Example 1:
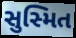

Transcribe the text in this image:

સુસ્મિત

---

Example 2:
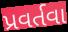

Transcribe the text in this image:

પ્રવર્તવા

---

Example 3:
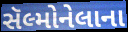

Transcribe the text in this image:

સૅલ્મોનેલાના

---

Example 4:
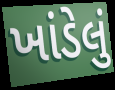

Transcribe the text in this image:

ખાંડેલું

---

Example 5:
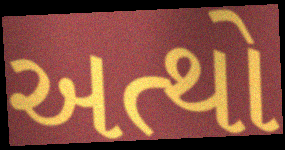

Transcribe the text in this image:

અત્થો